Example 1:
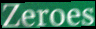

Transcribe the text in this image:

Zeroes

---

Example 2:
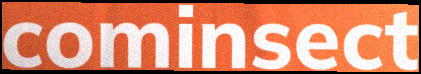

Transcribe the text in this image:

cominsect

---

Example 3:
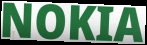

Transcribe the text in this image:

NOKIA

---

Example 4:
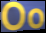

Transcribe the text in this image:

Oo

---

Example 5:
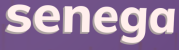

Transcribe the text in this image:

senega